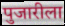
पुजारीला